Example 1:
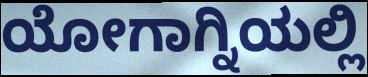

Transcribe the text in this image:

ಯೋಗಾಗ್ನಿಯಲ್ಲಿ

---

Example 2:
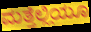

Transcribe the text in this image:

ಮತ್ತೆಲ್ಲಿಯೂ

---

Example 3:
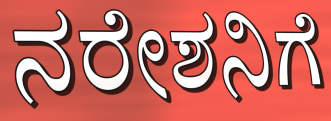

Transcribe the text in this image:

ನರೇಶನಿಗೆ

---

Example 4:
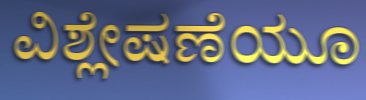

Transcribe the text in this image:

ವಿಶ್ಲೇಷಣೆಯೂ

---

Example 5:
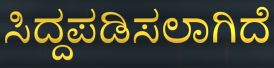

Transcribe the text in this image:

ಸಿದ್ದಪಡಿಸಲಾಗಿದೆ